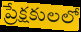
ప్రేక్షకులలో